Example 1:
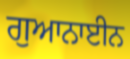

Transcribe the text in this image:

ਗੁਆਨਾਈਨ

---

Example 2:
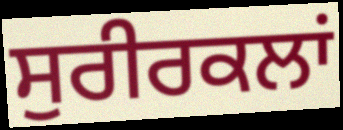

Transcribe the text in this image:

ਸੁਰੀਰਕਲਾਂ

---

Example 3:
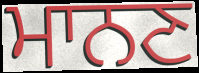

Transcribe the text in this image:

ਮਾਨਣ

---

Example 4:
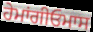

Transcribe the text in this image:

ਹੇਮਾਂਗੀਓਮਾਸ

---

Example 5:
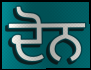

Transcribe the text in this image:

ਦੋਨ